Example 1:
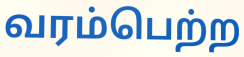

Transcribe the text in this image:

வரம்பெற்ற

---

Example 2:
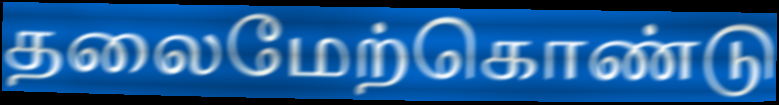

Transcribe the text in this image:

தலைமேற்கொண்டு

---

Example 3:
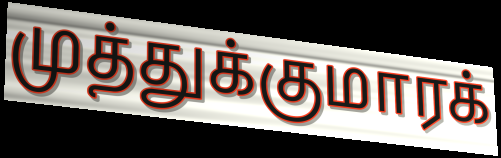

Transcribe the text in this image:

முத்துக்குமாரக்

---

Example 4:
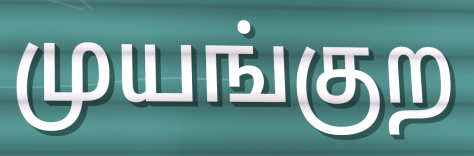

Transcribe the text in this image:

முயங்குற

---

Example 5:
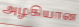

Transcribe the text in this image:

அழகியான